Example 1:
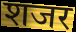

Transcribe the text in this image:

शजर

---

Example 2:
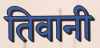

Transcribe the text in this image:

तिवानी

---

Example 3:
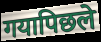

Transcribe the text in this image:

गयापिछले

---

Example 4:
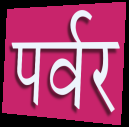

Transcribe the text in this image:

पर्वर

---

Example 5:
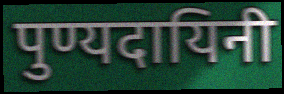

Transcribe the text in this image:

पुण्यदायिनी